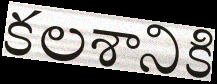
కలశానికి